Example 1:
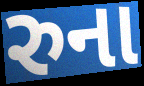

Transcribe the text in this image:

રુના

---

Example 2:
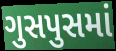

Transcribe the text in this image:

ગુસપુસમાં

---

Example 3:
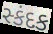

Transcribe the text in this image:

સ્કંદક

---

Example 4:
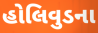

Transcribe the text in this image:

હોલિવુડના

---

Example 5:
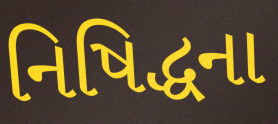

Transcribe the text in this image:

નિષિદ્ધના